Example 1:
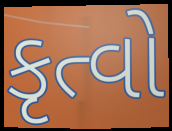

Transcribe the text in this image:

કૃત્વો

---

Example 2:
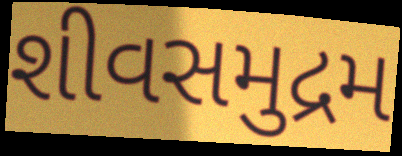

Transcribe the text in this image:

શીવસમુદ્રમ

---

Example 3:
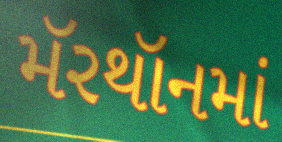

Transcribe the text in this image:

મૅરથૉનમાં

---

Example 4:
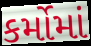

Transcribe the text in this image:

કર્મોમાં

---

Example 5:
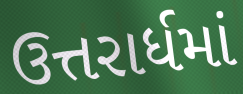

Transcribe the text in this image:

ઉત્તરાર્ધમાં